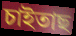
চাইতাছ